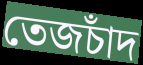
তেজচাঁদ